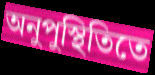
অনুপুস্থিতিতে